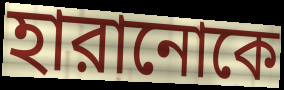
হারানোকে